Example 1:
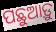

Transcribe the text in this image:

ପଛୁଆଡ଼ୁ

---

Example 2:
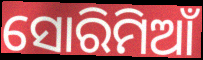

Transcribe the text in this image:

ସୋରିମିଆଁ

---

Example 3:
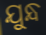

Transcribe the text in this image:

ଯୁନ୍ଧ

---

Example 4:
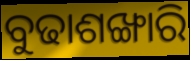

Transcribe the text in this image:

ବୁଢାଶଙ୍ଖାରି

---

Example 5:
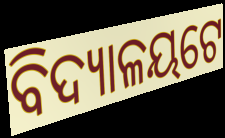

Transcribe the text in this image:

ବିଦ୍ୟାଳୟଟେ